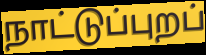
நாட்டுப்புறப்